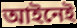
আইনেই